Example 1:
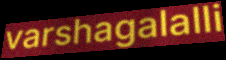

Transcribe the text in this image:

varshagalalli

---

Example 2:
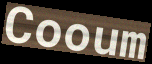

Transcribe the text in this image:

Cooum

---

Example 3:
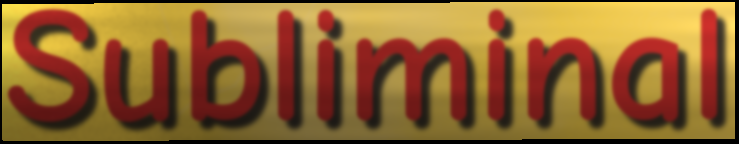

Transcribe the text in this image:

Subliminal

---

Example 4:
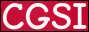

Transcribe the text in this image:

CGSI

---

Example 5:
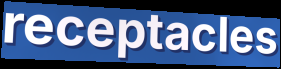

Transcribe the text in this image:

receptacles